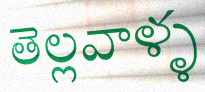
తెల్లవాళ్ళ